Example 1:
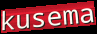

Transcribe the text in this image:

kusema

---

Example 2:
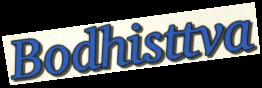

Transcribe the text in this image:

Bodhisttva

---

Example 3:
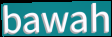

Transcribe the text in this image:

bawah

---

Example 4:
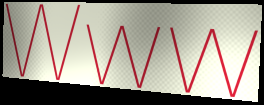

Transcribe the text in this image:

Www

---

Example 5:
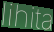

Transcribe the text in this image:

lihita